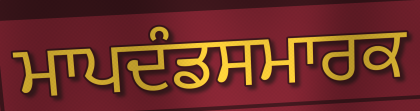
ਮਾਪਦੰਡਸਮਾਰਕ